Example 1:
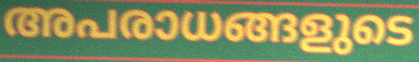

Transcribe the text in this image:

അപരാധങ്ങളുടെ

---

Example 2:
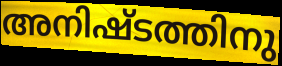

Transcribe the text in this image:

അനിഷ്ടത്തിനു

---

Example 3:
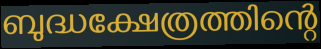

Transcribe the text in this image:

ബുദ്ധക്ഷേത്രത്തിന്റെ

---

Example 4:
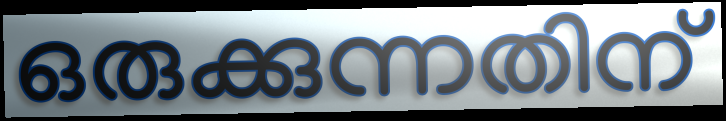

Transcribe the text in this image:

ഒരുക്കുന്നതിന്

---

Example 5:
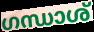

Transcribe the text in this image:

ഗന്ധാശ്